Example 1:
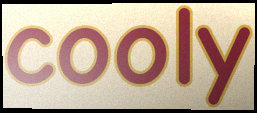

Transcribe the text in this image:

cooly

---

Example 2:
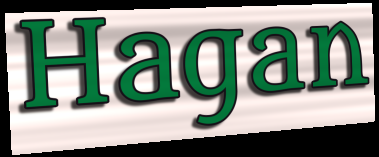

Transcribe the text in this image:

Hagan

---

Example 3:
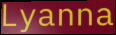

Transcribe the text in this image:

Lyanna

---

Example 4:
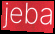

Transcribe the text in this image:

jeba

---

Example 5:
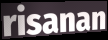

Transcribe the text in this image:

risanan